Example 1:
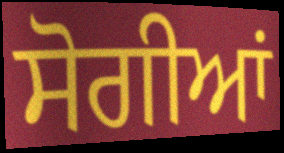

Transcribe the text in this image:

ਸੋਗੀਆਂ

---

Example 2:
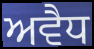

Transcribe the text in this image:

ਅਵੈਧ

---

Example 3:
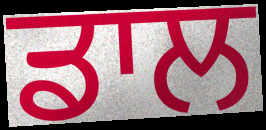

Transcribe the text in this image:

ਡਾਲ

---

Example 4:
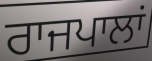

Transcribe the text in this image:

ਰਾਜਪਾਲਾਂ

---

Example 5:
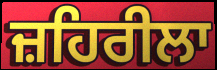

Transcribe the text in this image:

ਜ਼ਹਿਰੀਲਾ